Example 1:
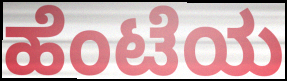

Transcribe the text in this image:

ಹೆಂಟೆಯ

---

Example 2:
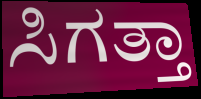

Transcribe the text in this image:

ಸಿಗತ್ತಾ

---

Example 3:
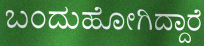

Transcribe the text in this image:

ಬಂದುಹೋಗಿದ್ದಾರೆ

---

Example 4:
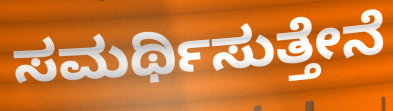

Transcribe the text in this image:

ಸಮರ್ಥಿಸುತ್ತೇನೆ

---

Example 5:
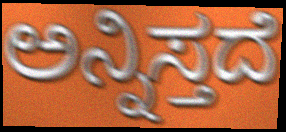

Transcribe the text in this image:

ಅನ್ನಿಸ್ತದೆ